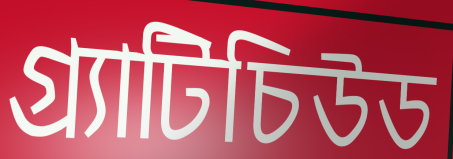
গ্র্যাটিচিউড